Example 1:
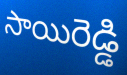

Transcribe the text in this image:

సాయిరెడ్డి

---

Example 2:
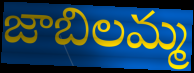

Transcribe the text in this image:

జాబిలమ్మ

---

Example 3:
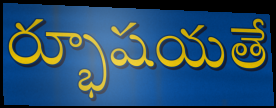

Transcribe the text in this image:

ర్భూషయతే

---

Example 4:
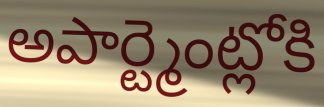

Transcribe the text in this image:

అపార్ట్మెంట్లోకి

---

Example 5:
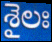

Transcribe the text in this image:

శైలః